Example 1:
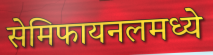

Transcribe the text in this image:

सेमिफायनलमध्ये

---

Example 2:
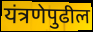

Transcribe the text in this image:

यंत्रणेपुढील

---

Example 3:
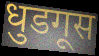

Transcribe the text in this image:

धुडगूस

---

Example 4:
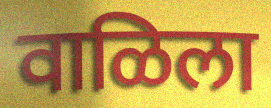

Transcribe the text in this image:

वाळिला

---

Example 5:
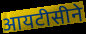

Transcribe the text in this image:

आयटीसीने